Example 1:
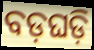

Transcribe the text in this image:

ବଡ଼ଘଡ଼ି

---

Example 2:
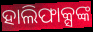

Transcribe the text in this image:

ହାଲିଫାକ୍ସଙ୍କ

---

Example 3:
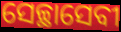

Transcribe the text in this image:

ସେଚ୍ଛାସେବୀ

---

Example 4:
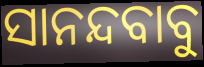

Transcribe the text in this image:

ସାନନ୍ଦବାବୁ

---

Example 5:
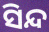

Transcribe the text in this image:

ସିନ୍ଦ